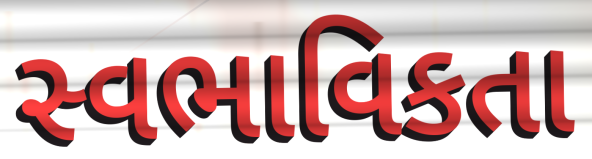
સ્વભાવિકતા